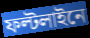
ফল্টলাইনে